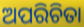
ଅପରିଚିତା